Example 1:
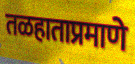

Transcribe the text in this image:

तळहाताप्रमाणे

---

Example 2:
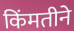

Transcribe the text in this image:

किंमतीने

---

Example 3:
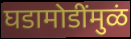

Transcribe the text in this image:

घडामोडींमुळं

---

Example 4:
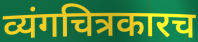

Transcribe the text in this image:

व्यंगचित्रकारच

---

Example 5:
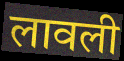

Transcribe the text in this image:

लावली